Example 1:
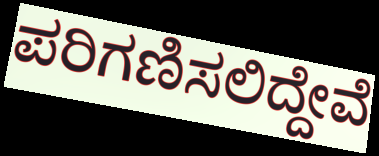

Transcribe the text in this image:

ಪರಿಗಣಿಸಲಿದ್ದೇವೆ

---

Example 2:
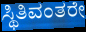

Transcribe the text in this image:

ಸ್ಥಿತಿವಂತರೇ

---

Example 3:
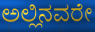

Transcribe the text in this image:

ಅಲ್ಲಿನವರೇ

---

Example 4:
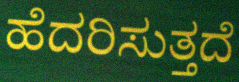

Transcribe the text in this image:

ಹೆದರಿಸುತ್ತದೆ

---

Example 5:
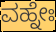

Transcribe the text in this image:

ವಹ್ನೇಃ